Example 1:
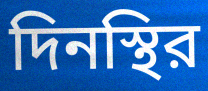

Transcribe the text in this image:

দিনস্থির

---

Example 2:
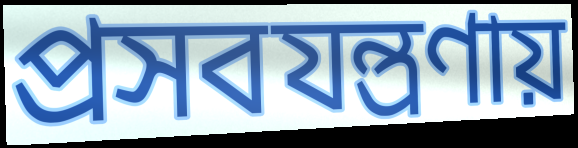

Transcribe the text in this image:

প্রসবযন্ত্রণায়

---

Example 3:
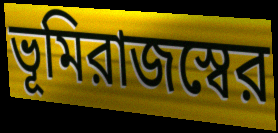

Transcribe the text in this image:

ভূমিরাজস্বের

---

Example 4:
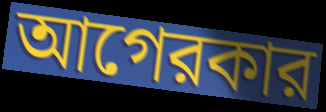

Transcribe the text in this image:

আগেরকার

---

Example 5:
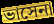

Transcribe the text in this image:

ভাসেনা